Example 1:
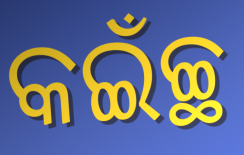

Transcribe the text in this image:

କଇଁଚ୍ଛ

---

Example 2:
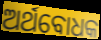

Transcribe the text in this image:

ଅର୍ଥବୋଧକ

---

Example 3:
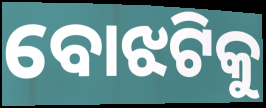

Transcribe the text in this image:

ବୋଝଟିକୁ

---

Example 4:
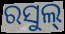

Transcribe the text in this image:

ରସୁଲ୍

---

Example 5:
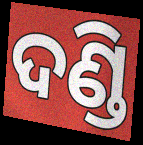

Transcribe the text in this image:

ଦଣ୍ଡି